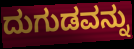
ದುಗುಡವನ್ನು